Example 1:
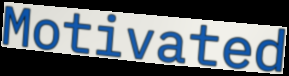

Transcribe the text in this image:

Motivated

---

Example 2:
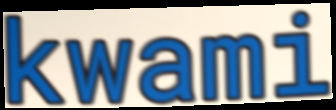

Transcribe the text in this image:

kwami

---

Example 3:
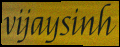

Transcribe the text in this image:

vijaysinh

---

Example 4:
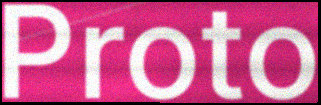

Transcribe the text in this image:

Proto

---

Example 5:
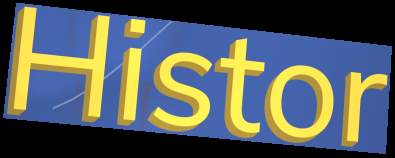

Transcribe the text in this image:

Histor